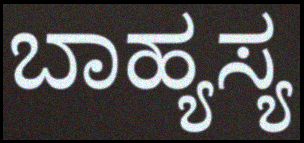
ಬಾಹ್ಯಸ್ಯ